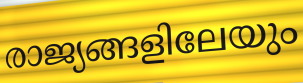
രാജ്യങ്ങളിലേയും